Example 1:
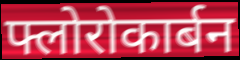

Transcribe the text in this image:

फ्लोरोकार्बन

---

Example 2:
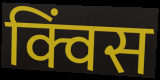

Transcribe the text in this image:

क्विंस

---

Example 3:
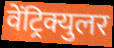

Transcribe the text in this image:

वेंट्रिक्युलर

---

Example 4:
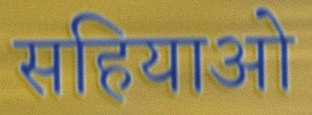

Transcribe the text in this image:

सहियाओ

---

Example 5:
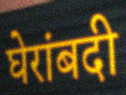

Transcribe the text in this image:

घेरांबदी